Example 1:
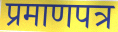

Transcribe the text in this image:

प्रमाणपत्र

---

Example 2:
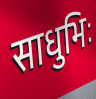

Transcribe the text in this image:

साधुभिः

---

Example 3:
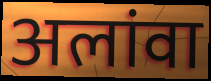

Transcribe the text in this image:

अलांवा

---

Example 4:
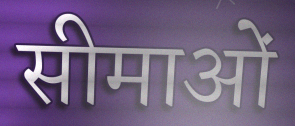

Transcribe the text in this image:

सीमाओं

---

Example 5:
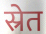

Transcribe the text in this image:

स्रेत